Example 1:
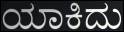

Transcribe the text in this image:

ಯಾಕಿದು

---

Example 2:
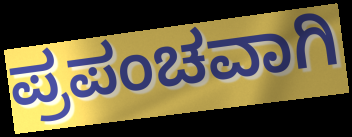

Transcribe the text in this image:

ಪ್ರಪಂಚವಾಗಿ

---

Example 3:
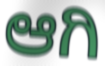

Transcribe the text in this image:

ಆಗಿ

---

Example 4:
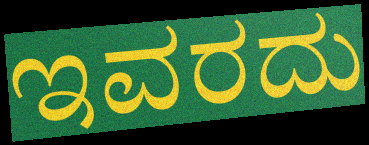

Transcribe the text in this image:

ಇವರದು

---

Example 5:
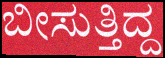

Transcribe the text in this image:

ಬೀಸುತ್ತಿದ್ದ